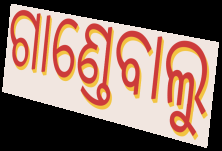
ଗାଣ୍ଡେବାଲୁ